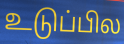
உடுப்பில